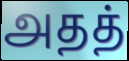
அதத்